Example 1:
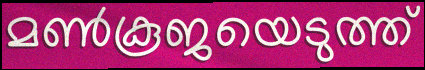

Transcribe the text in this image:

മൺകൂജയെടുത്ത്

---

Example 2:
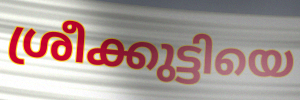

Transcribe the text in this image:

ശ്രീക്കുട്ടിയെ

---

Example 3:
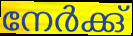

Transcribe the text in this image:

നേർക്കു്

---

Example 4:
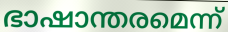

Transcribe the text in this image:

ഭാഷാന്തരമെന്ന്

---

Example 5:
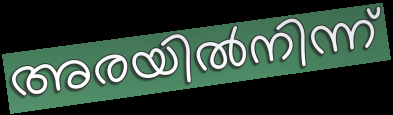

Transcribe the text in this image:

അരയിൽനിന്ന്